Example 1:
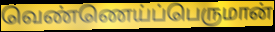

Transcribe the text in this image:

வெண்ணெய்ப்பெருமான்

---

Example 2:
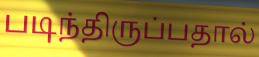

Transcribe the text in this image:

படிந்திருப்பதால்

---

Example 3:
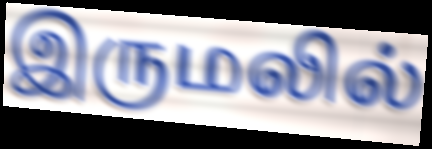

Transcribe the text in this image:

இருமலில்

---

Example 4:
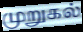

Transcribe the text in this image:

முறுகல்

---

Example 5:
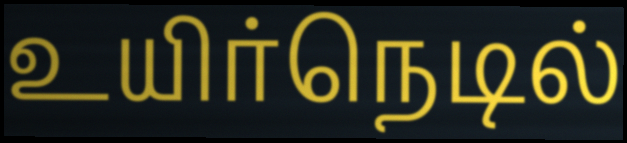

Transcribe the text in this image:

உயிர்நெடில்